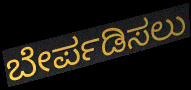
ಬೇರ್ಪಡಿಸಲು